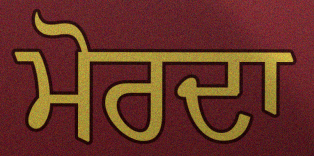
ਮੋਰਦਾ